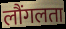
लौंगलता